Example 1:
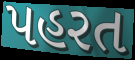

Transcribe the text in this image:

પહરત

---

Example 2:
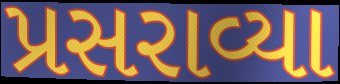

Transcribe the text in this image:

પ્રસરાવ્યા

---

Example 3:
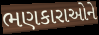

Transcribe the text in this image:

ભણકારાઓને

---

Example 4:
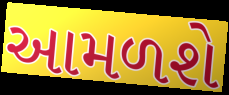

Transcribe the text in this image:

આમળશે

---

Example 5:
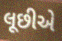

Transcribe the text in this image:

લૂછીએ